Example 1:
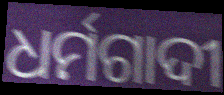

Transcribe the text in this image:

ଧର୍ମଗାଦୀ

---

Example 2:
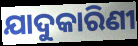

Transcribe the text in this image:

ଯାଦୁକାରିଣୀ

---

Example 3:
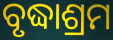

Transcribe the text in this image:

ବୃଦ୍ଧାଶ୍ରମ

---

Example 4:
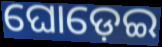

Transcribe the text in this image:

ଘୋଡ଼େଇ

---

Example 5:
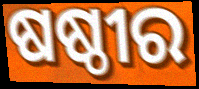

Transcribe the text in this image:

ଷଷ୍ଠୀର